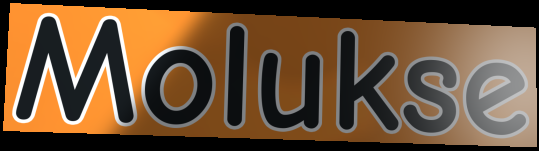
Molukse